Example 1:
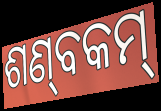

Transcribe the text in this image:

ଶଣ୍‌ବକମ୍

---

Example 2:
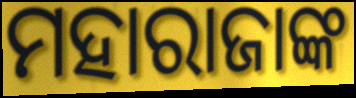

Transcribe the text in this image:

ମହାରାଜାଙ୍କ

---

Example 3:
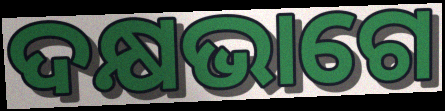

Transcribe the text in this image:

ଦକ୍ଷଭାଗେ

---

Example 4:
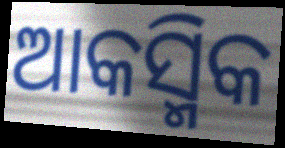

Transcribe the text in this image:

ଆକସ୍ମିକ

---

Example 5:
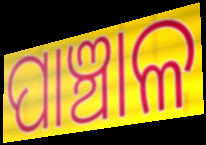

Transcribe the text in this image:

ପାଞ୍ଚାଳ